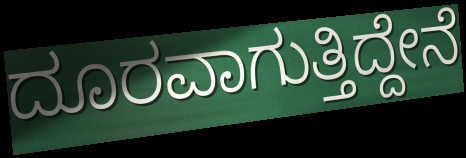
ದೂರವಾಗುತ್ತಿದ್ದೇನೆ